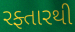
રફ્તારથી